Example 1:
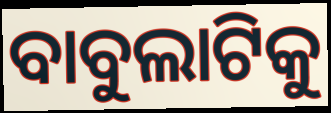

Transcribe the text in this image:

ବାବୁଲାଟିକୁ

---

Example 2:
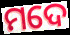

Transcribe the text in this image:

ମଦେ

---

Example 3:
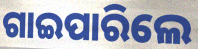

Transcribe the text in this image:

ଗାଇପାରିଲେ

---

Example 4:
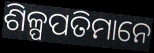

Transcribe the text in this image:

ଶିଳ୍ପପତିମାନେ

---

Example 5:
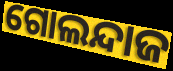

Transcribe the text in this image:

ଗୋଲନ୍ଦାଜ